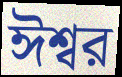
ঈশ্বর